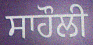
ਸਾਹੌਲੀ